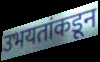
उभयतांकडून